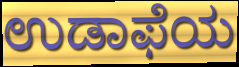
ಉಡಾಫೆಯ